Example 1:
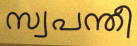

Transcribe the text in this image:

സ്വപന്തീ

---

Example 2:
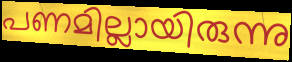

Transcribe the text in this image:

പണമില്ലായിരുന്നു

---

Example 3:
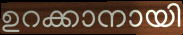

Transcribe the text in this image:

ഉറക്കാനായി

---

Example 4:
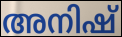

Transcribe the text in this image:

അനിഷ്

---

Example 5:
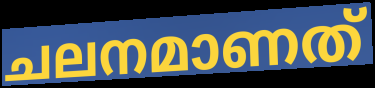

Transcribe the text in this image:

ചലനമാണത്